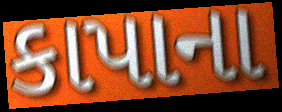
કાપાના